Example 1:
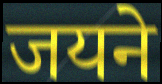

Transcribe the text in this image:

जयने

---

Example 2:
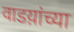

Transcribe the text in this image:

वाडय़ांच्या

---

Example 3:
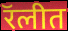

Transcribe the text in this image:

रॅलीत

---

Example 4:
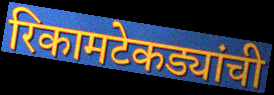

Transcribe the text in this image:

रिकामटेकड्यांची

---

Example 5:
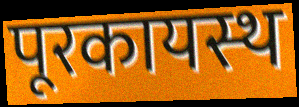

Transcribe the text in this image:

पूरकायस्थ